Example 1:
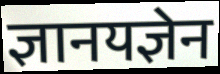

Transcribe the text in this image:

ज्ञानयज्ञेन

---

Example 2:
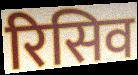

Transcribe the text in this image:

रिसिव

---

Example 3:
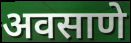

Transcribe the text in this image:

अवसाणे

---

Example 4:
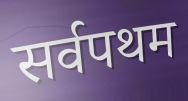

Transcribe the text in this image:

सर्वपथम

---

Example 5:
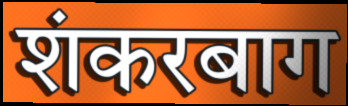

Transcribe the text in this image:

शंकरबाग